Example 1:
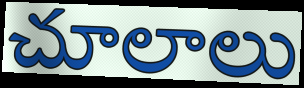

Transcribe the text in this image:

చూలాలు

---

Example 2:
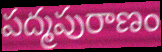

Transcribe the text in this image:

పద్మపురాణం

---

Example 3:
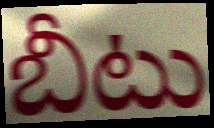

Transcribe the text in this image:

బీటు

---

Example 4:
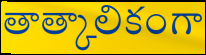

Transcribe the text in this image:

తాత్కాలికంగా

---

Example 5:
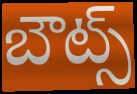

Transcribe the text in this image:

బౌట్స్